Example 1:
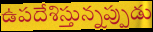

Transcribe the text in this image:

ఉపదేశిస్తున్నప్పుడు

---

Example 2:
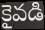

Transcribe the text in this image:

కైవడి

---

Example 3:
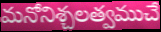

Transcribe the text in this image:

మనోనిశ్చలత్వముచే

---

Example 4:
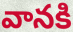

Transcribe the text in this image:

వానకి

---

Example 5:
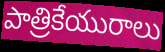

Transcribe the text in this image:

పాత్రికేయురాలు